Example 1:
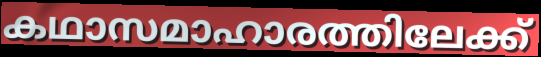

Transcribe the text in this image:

കഥാസമാഹാരത്തിലേക്ക്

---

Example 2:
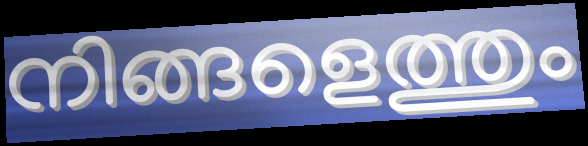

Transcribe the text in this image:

നിങ്ങളെത്തും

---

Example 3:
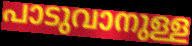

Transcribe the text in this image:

പാടുവാനുള്ള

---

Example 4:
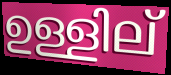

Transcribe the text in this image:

ഉള്ളില്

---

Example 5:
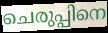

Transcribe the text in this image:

ചെരുപ്പിനെ